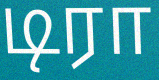
டிரா